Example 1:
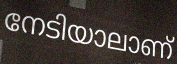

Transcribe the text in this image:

നേടിയാലാണ്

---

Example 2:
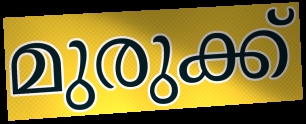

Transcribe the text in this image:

മുരുക്ക്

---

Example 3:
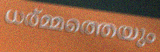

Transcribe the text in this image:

ധര്മ്മത്തെയും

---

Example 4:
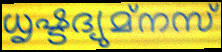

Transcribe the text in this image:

ധൃഷ്ടദ്യുമ്നസ്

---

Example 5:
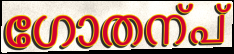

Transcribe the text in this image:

ഗോതന്പ്